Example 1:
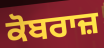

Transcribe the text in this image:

ਕੋਬਰਾਜ਼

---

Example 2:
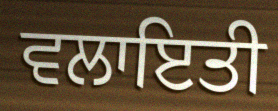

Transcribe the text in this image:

ਵਲਾਇਤੀ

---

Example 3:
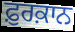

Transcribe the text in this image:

ਫ਼ੁਰਕ਼ਾਨ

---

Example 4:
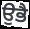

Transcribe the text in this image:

ਉਭੈ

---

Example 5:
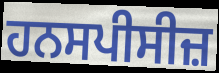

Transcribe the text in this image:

ਹਨਸਪੀਸੀਜ਼